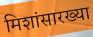
मिशांसारख्या